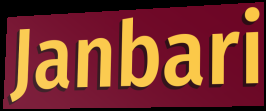
Janbari